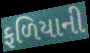
ફળિયાની